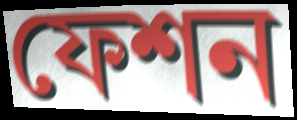
ফেশন